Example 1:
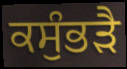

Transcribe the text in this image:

ਕਸੁੰਭੜੈ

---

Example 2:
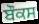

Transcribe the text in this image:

ਬੌਕਸ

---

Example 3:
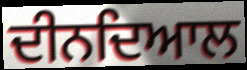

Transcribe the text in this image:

ਦੀਨਦਿਆਲ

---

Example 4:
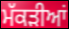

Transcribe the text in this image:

ਮੱਕੜੀਆਂ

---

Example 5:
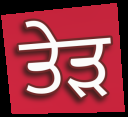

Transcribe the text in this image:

ਤੇੜ